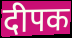
दीपक